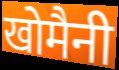
खोमैनी